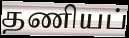
தணியப்